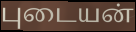
புடையன்